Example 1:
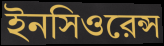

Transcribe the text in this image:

ইনসিওরেন্স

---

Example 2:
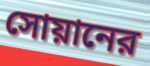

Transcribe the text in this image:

সোয়ানের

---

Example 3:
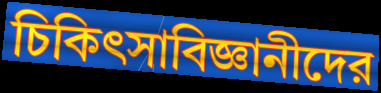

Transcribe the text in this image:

চিকিৎসাবিজ্ঞানীদের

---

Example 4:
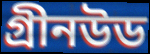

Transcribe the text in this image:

গ্রীনউড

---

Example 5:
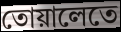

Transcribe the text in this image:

তোয়ালেতে